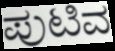
ಪುಟಿವ